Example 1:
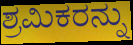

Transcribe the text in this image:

ಶ್ರಮಿಕರನ್ನು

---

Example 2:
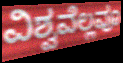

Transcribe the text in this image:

ವಿಶ್ವವೆಲ್ಲವೂ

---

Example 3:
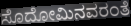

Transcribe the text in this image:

ಸೊದೋಮಿನವರಂತೆ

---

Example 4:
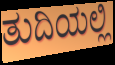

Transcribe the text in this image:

ತುದಿಯಲ್ಲಿ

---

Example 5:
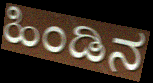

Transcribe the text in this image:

ಹಿಂಡಿನ